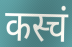
कस्चं